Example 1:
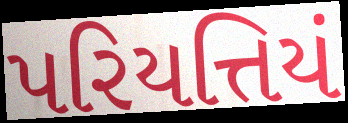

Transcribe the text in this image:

પરિયત્તિયં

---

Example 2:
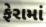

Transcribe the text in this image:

ફેરામાં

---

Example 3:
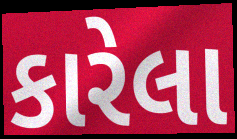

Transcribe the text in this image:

કારેલા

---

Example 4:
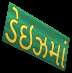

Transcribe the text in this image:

ડેઇઝમાં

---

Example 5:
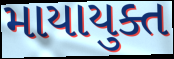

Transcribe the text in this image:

માયાયુક્ત